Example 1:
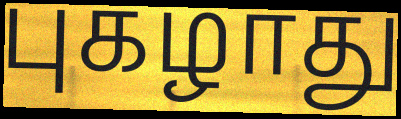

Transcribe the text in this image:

புகழாது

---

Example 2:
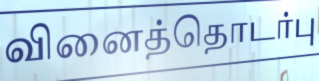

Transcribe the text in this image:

வினைத்தொடர்பு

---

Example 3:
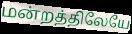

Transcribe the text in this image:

மன்றத்திலேயே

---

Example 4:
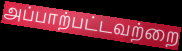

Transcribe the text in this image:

அப்பாற்பட்டவற்றை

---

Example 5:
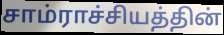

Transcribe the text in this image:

சாம்ராச்சியத்தின்